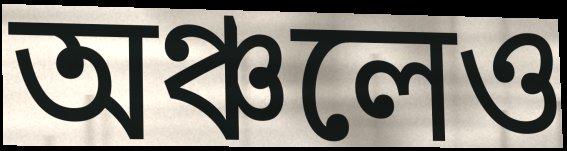
অঞ্চলেও